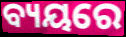
ବ୍ୟୟରେ